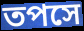
তপসে